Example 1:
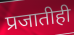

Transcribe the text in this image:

प्रजातीही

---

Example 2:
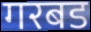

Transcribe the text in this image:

गरबड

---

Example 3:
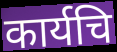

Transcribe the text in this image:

कार्यचि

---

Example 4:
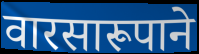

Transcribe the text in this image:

वारसारूपाने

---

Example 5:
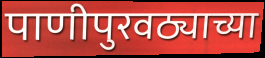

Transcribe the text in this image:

पाणीपुरवठ्याच्या